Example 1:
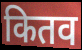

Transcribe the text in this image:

कितव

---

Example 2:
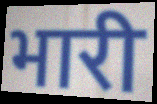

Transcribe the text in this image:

भारी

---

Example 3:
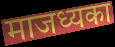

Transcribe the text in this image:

माजध्यका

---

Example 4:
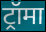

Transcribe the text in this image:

ट्रॉमा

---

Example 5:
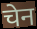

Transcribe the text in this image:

चेन